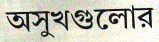
অসুখগুলোর